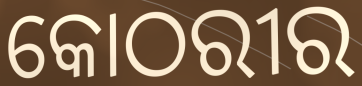
କୋଠରୀର